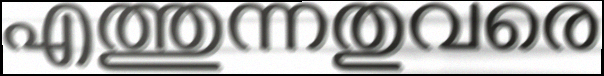
എത്തുന്നതുവരെ